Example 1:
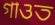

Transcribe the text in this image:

গাওত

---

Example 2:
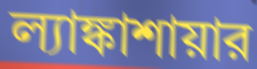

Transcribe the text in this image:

ল্যাঙ্কাশায়ার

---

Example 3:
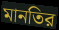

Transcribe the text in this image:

মানতির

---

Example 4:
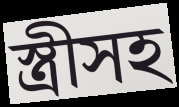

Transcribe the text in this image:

স্ত্রীসহ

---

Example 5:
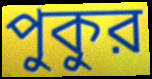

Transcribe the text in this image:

পুকুর